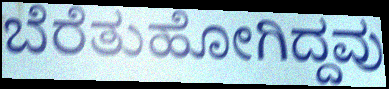
ಬೆರೆತುಹೋಗಿದ್ದವು